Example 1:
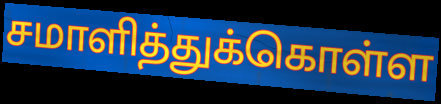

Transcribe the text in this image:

சமாளித்துக்கொள்ள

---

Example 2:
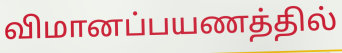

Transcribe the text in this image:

விமானப்பயணத்தில்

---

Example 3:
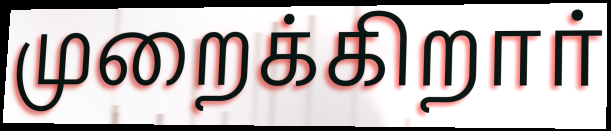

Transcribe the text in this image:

முறைக்கிறார்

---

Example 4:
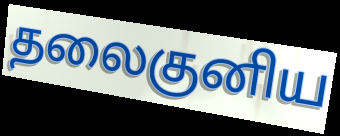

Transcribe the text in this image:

தலைகுனிய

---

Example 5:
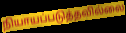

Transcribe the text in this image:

நியாயப்படுத்தவில்லை